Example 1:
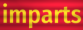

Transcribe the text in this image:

imparts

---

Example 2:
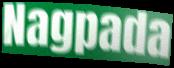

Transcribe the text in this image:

Nagpada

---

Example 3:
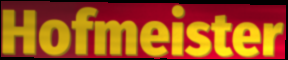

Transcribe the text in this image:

Hofmeister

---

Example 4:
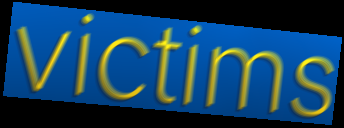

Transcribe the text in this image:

victims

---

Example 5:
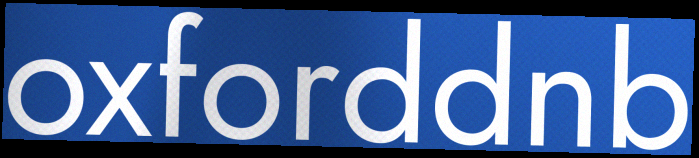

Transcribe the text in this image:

oxforddnb